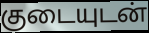
குடையுடன்